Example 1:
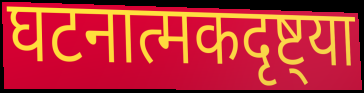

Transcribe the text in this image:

घटनात्मकदृष्ट्या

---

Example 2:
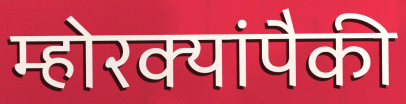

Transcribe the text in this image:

म्होरक्यांपैकी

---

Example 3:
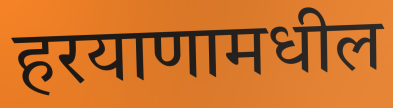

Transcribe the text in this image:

हरयाणामधील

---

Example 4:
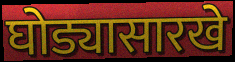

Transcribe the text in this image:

घोड्यासारखे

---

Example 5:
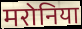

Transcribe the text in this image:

मरोनिया